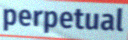
perpetual